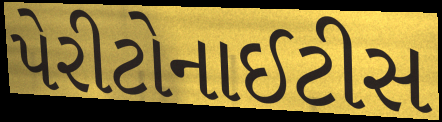
પેરીટોનાઈટીસ